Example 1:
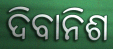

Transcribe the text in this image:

ଦିବାନିଶ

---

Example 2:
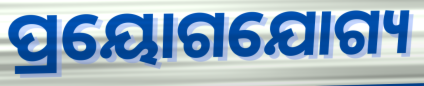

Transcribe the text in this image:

ପ୍ରୟୋଗଯୋଗ୍ୟ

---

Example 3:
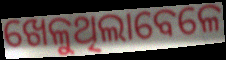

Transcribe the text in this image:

ଖେଳୁଥିଲାବେଳେ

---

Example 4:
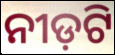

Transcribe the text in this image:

ନୀଡ଼ଟି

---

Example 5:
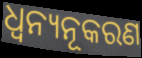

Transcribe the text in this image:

ଧ୍ୱନ୍ୟନୂକରଣ